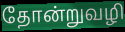
தோன்றுவழி